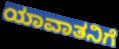
ಯಾವಾತನಿಗೆ